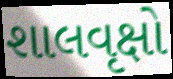
શાલવૃક્ષો